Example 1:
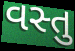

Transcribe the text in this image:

વસ્તુ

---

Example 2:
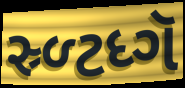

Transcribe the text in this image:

સ્ર્ળ્ટધ્ગૅ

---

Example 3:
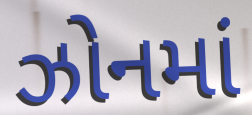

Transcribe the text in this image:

ઝોનમાં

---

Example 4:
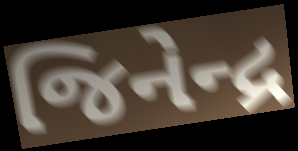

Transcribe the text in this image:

જિનેન્દ્ર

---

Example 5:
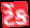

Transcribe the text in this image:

ટેંક